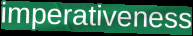
imperativeness